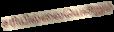
சரியில்லையென்றும்